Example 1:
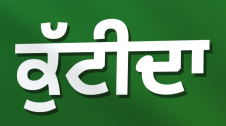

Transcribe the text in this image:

ਕੁੱਟੀਦਾ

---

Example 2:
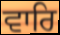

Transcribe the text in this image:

ਵਾਰਿ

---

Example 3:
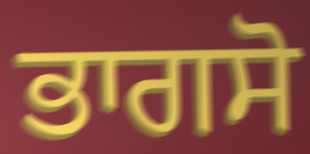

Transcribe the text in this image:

ਭਾਗਸੋ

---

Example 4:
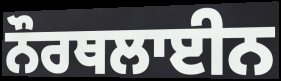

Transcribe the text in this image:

ਨੌਰਥਲਾਈਨ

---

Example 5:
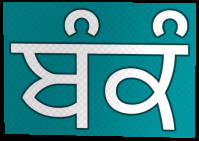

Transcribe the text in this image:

ਬੰਕੰ